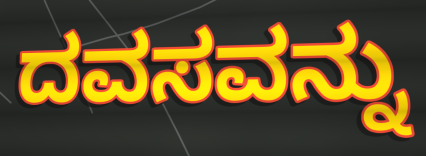
ದವಸವನ್ನು